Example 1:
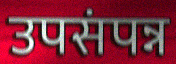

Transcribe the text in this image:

उपसंपन्न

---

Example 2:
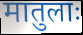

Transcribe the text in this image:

मातुलाः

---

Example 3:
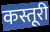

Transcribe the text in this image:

कस्तूरी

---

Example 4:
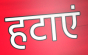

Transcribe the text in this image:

हटाएं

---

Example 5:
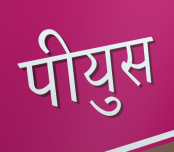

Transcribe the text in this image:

पीयुस